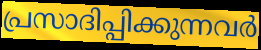
പ്രസാദിപ്പിക്കുന്നവർ